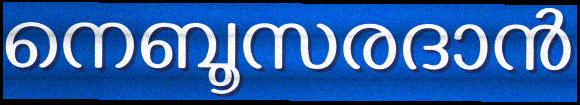
നെബൂസരദാൻ